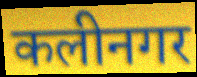
कलीनगर